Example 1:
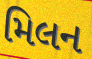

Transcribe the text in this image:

મિલન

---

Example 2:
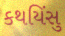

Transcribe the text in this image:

કથયિંસુ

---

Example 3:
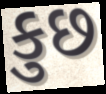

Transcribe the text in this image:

કુછ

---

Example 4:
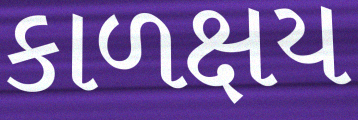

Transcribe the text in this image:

કાળક્ષય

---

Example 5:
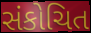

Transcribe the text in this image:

સંકોચિત